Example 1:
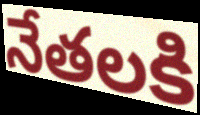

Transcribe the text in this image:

నేతలకి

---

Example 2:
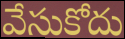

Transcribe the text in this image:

వేసుకోదు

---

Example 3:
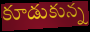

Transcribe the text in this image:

కూడుకున్న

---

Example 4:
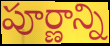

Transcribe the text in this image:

పూర్ణాన్ని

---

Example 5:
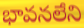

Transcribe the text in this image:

భావనలేని